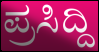
ಪ್ರಸಿದ್ದಿ